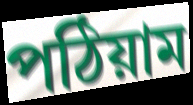
পঠিয়াম